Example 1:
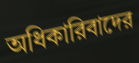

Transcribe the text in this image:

অধিকারিবাদের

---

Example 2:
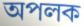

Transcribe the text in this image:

অপলক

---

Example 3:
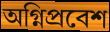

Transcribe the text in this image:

অগ্নিপ্রবেশ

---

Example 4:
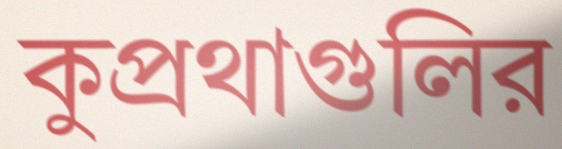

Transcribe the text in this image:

কুপ্রথাগুলির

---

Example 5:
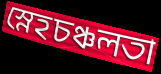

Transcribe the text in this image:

স্নেহচঞ্চলতা